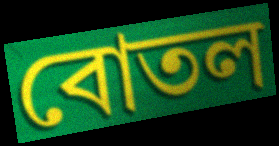
বোতল